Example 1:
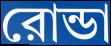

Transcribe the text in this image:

রোন্ডা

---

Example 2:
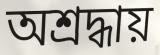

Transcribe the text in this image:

অশ্রদ্ধায়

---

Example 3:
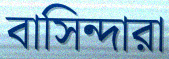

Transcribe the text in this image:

বাসিন্দারা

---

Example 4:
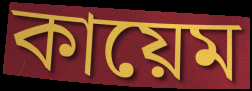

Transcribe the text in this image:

কায়েম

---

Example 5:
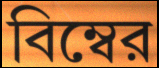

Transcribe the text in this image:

বিম্বের